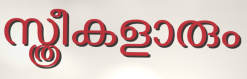
സ്ത്രീകളാരും